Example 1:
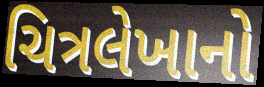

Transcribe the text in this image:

ચિત્રલેખાનો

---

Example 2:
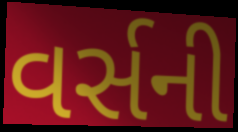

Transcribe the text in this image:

વર્સની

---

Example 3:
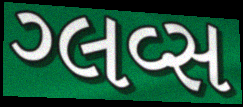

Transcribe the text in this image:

ગ્લવ્સ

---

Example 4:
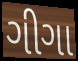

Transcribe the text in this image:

ગીગા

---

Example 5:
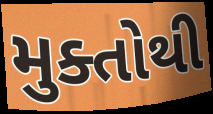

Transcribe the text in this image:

મુક્તોથી